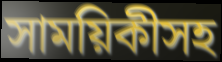
সাময়িকীসহ